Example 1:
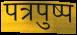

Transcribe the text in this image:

पत्रपुष्प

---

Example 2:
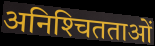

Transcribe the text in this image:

अनिश्‍चितताओं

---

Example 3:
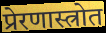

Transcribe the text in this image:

प्रेरणास्त्रोत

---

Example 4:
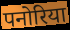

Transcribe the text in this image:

पनोरिया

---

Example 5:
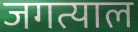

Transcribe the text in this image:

जगत्याल